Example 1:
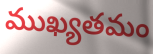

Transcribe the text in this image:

ముఖ్యతమం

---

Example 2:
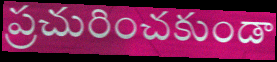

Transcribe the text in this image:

ప్రచురించకుండా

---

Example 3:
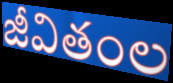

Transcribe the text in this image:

జీవితంల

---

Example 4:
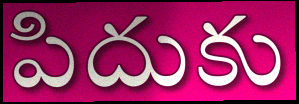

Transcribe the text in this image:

పిదుకు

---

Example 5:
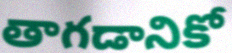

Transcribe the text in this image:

తాగడానికో